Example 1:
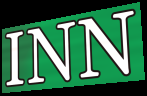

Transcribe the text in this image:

INN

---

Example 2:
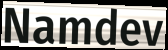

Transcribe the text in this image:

Namdev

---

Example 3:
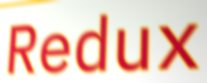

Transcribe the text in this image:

Redux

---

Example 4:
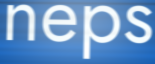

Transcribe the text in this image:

neps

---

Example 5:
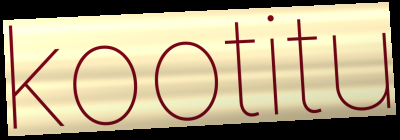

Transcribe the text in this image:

kootitu